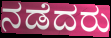
ನಡೆದರು